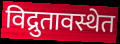
विद्रुतावस्थेत